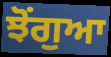
ਝੋਂਗੁਆ